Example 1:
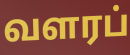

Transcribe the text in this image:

வளரப்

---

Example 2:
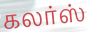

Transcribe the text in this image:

கலர்ஸ்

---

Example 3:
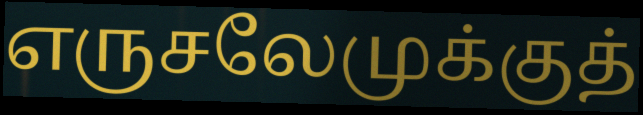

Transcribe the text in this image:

எருசலேமுக்குத்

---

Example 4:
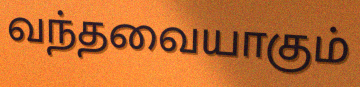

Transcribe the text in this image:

வந்தவையாகும்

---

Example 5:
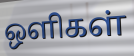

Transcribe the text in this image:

ஒளிகள்